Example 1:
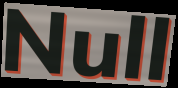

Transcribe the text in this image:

Null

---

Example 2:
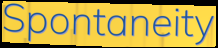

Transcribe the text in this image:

Spontaneity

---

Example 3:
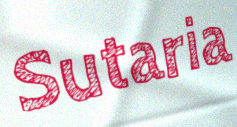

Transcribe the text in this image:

Sutaria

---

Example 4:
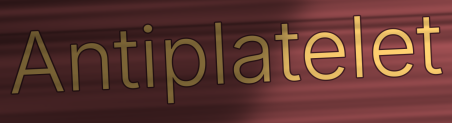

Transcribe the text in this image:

Antiplatelet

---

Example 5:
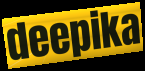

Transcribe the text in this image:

deepika